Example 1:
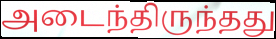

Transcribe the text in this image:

அடைந்திருந்தது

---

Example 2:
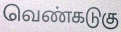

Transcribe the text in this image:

வெண்கடுகு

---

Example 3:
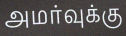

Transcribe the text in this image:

அமர்வுக்கு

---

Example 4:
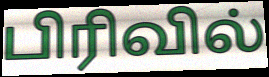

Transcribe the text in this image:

பிரிவில்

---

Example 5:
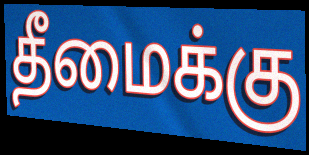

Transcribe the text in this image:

தீமைக்கு